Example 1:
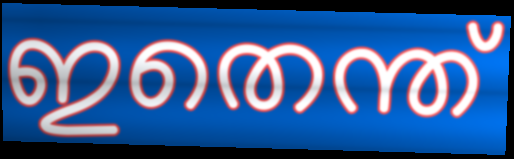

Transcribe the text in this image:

ഇതെന്ത്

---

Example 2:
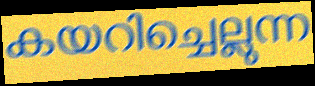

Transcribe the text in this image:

കയറിച്ചെല്ലുന്ന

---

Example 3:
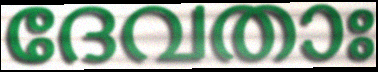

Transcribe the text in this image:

ദേവതാഃ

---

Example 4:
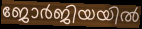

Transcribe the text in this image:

ജോർജിയയിൽ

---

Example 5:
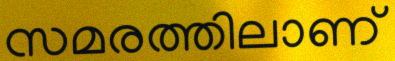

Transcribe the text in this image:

സമരത്തിലാണ്